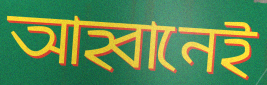
আহ্বানেই